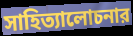
সাহিত্যালোচনার